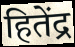
हितेंद्र